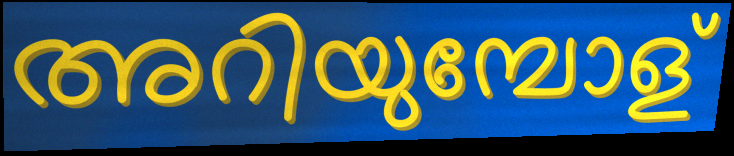
അറിയുമ്പോള്